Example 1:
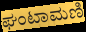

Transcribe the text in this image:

ಘಂಟಾಮಣಿ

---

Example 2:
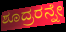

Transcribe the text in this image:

ಶೂದ್ರರನ್ನೇ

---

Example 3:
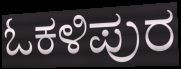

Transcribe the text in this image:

ಓಕಳಿಪುರ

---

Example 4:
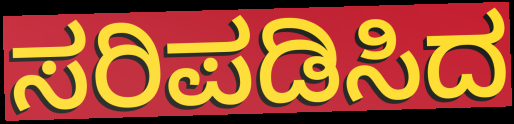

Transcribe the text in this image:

ಸರಿಪಡಿಸಿದ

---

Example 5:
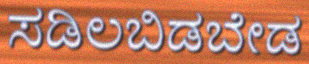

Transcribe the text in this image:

ಸಡಿಲಬಿಡಬೇಡ